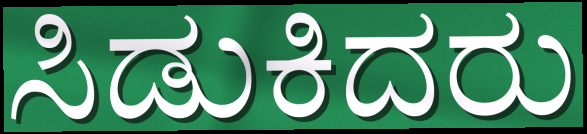
ಸಿಡುಕಿದರು